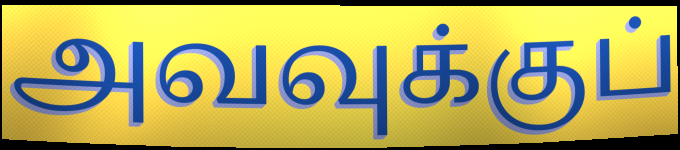
அவவுக்குப்